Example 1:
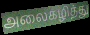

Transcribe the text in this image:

அலைகழித்து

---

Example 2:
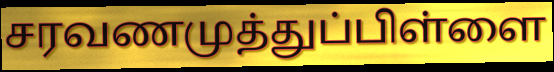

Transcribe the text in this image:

சரவணமுத்துப்பிள்ளை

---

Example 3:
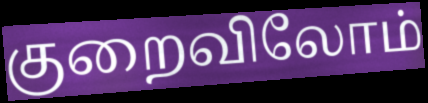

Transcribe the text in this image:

குறைவிலோம்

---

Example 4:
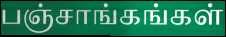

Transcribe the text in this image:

பஞ்சாங்கங்கள்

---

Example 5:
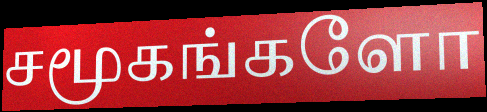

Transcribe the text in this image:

சமூகங்களோ